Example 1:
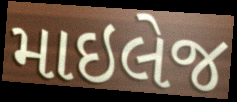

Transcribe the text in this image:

માઇલેજ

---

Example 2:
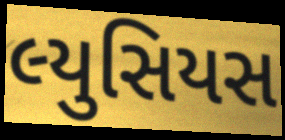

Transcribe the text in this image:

લ્યુસિયસ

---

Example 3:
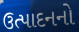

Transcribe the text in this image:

ઉત્પાદનનો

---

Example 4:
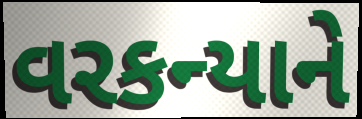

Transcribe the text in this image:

વરકન્યાને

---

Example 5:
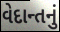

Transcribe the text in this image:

વેદાન્તનું